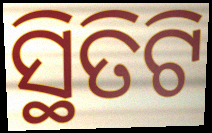
ସ୍ଥିତିଟି